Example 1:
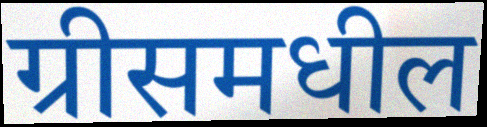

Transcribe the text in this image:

ग्रीसमधील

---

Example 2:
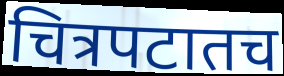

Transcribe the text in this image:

चित्रपटातच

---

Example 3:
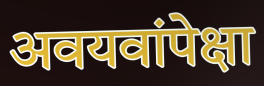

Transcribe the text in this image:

अवयवांपेक्षा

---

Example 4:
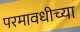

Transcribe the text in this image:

परमावधीच्या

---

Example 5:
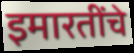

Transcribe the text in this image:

इमारतींचे